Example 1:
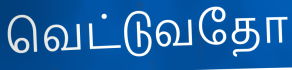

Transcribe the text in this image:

வெட்டுவதோ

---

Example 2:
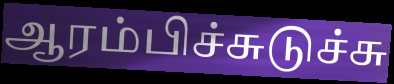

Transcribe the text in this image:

ஆரம்பிச்சுடுச்சு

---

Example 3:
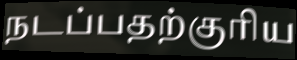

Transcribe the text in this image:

நடப்பதற்குரிய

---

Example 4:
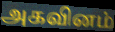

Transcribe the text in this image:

அகவினம்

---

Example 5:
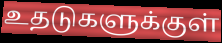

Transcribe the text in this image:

உதடுகளுக்குள்